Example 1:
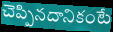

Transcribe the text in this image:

చెప్పినదానికంటే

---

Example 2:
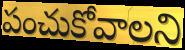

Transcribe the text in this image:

పంచుకోవాలని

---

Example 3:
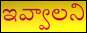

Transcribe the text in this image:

ఇవ్వాలని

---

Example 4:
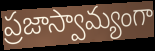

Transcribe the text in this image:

ప్రజాస్వామ్యంగా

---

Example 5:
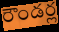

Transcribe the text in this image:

రౌండర్ల